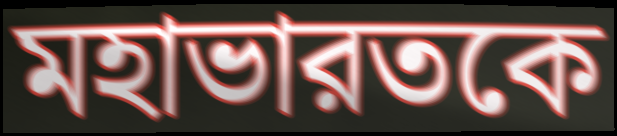
মহাভারতকে